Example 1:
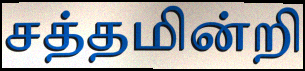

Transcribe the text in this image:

சத்தமின்றி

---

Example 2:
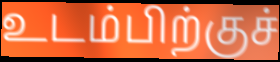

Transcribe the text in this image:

உடம்பிற்குச்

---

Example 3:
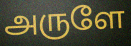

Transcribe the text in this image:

அருளே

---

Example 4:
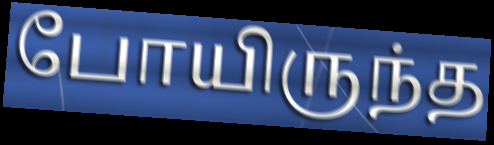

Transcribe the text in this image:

போயிருந்த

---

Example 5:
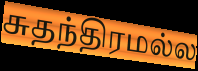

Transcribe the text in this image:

சுதந்திரமல்ல